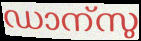
ഡാന്സു